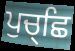
ਪੁਚ੍ਛਿ